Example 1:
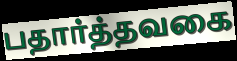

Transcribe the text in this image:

பதார்த்தவகை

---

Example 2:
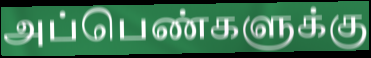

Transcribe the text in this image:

அப்பெண்களுக்கு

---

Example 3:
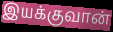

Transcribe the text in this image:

இயக்குவான்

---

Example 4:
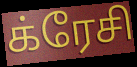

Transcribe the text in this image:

க்ரேசி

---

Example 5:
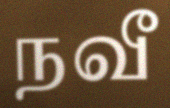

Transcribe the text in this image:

நவீ